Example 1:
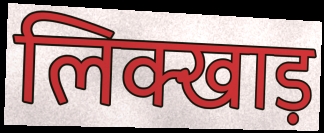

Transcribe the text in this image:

लिक्खाड़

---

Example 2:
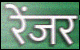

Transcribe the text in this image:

रेंजर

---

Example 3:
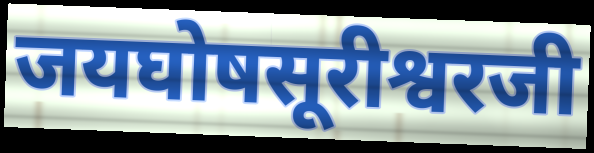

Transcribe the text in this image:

जयघोषसूरीश्वरजी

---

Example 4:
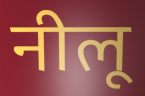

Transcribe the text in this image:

नीलू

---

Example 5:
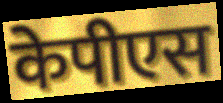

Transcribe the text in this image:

केपीएस